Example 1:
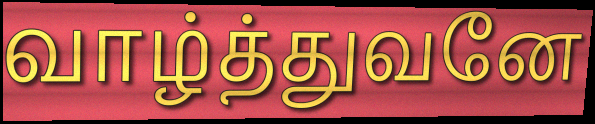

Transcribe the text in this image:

வாழ்த்துவனே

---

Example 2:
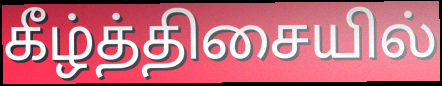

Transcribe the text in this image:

கீழ்த்திசையில்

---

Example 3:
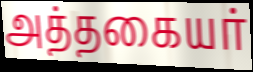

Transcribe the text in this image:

அத்தகையர்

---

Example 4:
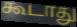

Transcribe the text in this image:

கூடாது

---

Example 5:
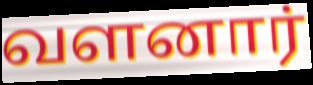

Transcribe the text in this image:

வளனார்